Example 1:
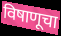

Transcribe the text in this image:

विषाणूचा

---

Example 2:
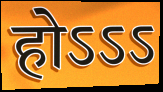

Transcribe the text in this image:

होऽऽऽ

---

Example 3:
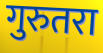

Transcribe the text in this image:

गुरुतरा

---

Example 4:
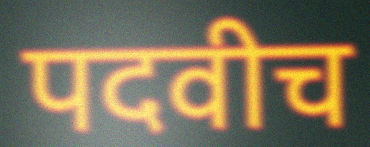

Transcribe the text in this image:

पदवीच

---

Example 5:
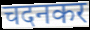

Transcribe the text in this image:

चदनकर